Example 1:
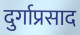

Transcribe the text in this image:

दुर्गाप्रसाद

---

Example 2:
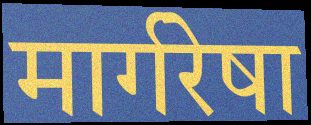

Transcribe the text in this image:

मार्गरेषा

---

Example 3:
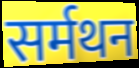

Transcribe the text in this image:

सर्मथन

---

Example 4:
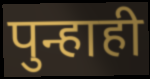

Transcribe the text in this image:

पुन्हाही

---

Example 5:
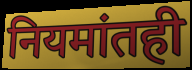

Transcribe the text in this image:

नियमांतही